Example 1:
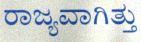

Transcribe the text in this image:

ರಾಜ್ಯವಾಗಿತ್ತು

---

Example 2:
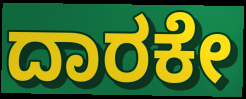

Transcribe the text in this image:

ದಾರಕೇ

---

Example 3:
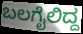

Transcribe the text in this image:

ಬಲಗೈಲಿದ್ದ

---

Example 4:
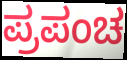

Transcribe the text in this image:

ಪ್ರಪಂಚ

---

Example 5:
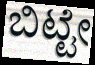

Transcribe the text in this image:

ಬಿಟ್ಟೇ